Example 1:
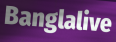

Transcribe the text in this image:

Banglalive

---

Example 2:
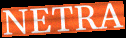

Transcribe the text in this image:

NETRA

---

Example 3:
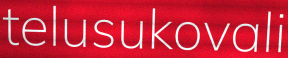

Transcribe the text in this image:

telusukovali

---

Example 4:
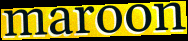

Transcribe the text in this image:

maroon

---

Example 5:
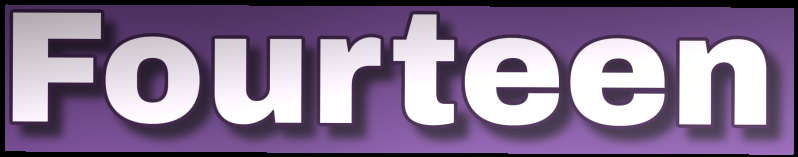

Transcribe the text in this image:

Fourteen